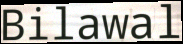
Bilawal